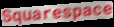
Squarespace